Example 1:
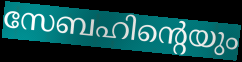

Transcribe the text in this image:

സേബഹിന്റെയും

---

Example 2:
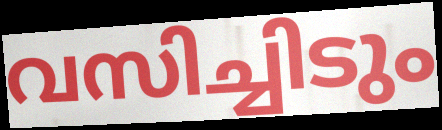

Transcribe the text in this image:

വസിച്ചിടും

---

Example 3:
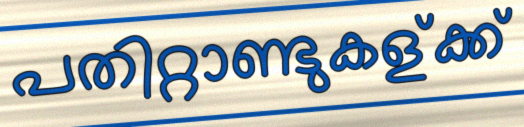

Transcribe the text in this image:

പതിറ്റാണ്ടുകള്ക്ക്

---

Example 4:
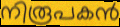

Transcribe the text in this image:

നിരൂപകൻ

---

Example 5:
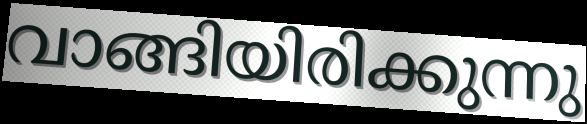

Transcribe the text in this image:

വാങ്ങിയിരിക്കുന്നു